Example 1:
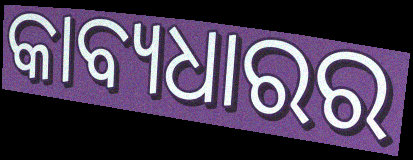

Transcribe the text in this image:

କାବ୍ୟଧାରର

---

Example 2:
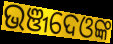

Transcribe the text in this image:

ଭଞ୍ଜଦେଓଙ୍କ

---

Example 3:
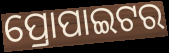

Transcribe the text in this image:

ପ୍ରୋପାଇଟର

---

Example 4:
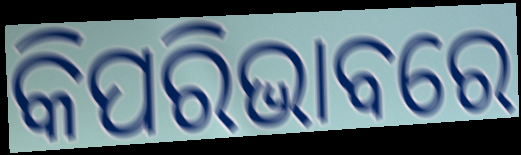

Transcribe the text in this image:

କିପରିଭାବରେ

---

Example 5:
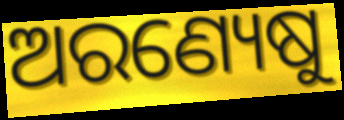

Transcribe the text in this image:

ଅରଣ୍ୟେଷୁ